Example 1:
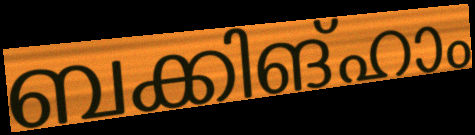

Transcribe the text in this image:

ബക്കിങ്ഹാം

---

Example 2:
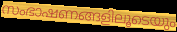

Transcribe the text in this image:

സംഭാഷണങ്ങളിലൂടെയും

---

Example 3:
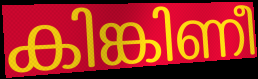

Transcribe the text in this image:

കിങ്കിണീ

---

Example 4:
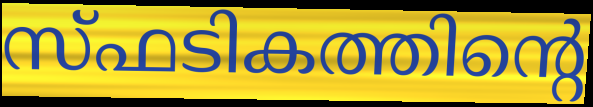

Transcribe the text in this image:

സ്ഫടികത്തിന്റെ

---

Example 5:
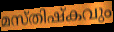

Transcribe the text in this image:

മസ്തിഷ്കവും